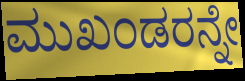
ಮುಖಂಡರನ್ನೇ